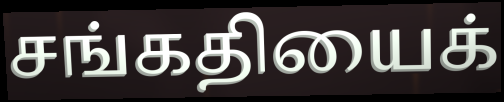
சங்கதியைக்